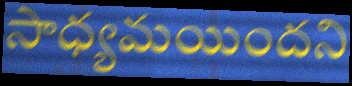
సాధ్యమయిందని